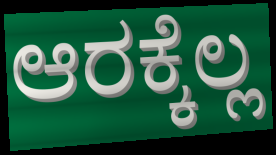
ಆರಕ್ಕೆಲ್ಲ